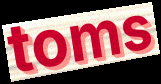
toms